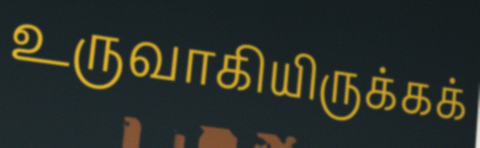
உருவாகியிருக்கக்